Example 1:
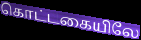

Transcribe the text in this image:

கொட்டகையிலே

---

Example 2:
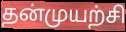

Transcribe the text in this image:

தன்முயற்சி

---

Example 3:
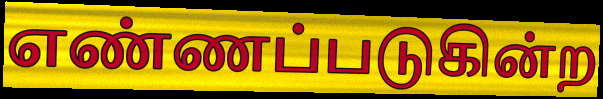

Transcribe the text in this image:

எண்ணப்படுகின்ற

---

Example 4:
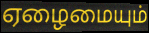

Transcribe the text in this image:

ஏழைமையும்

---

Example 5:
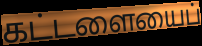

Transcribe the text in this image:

கட்டளையைப்